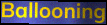
Ballooning